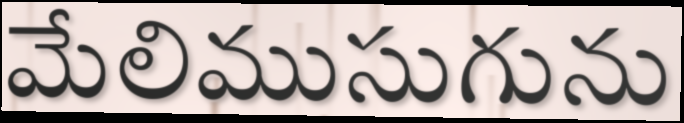
మేలిముసుగును